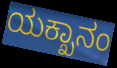
ಯಕ್ಖಾನಂ